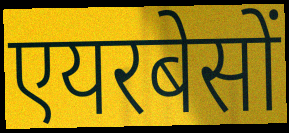
एयरबेसों